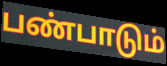
பண்பாடும்